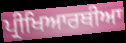
ਪ੍ਰੀਖਿਆਰਥੀਆ